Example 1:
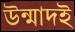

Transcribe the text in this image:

উন্মাদই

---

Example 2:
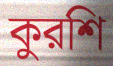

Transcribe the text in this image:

কুরশি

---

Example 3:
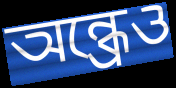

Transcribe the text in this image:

অন্ধ্রেও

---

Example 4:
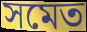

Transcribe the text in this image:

সমেত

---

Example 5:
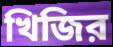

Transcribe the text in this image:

খিজির